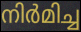
നിർമിച്ച